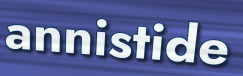
annistide